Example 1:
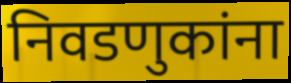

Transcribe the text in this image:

निवडणुकांना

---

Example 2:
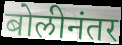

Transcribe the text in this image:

बोलीनंतर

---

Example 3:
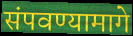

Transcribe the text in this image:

संपवण्यामागे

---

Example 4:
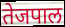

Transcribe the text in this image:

तेजपाल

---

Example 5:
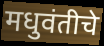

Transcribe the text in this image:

मधुवंतीचे